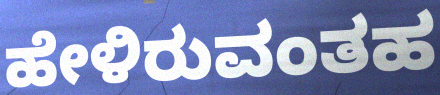
ಹೇಳಿರುವಂತಹ